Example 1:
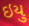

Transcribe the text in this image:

ઇયુ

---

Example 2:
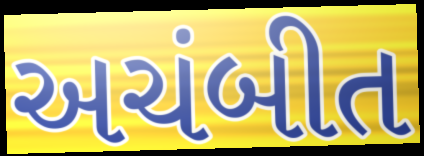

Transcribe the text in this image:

અચંબીત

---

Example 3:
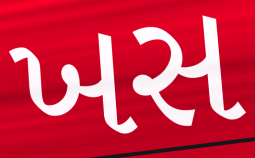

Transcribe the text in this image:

ખસ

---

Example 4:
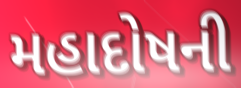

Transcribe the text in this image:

મહાદોષની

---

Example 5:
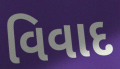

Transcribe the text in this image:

વિવાદ